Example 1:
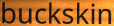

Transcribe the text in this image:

buckskin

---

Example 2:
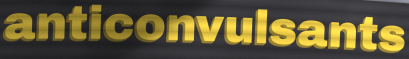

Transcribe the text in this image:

anticonvulsants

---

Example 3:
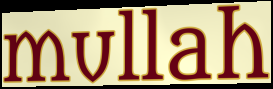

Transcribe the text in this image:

mullah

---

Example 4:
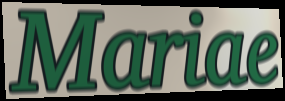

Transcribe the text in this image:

Mariae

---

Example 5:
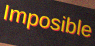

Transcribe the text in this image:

Imposible